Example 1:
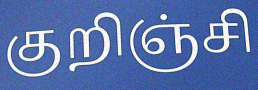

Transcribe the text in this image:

குறிஞ்சி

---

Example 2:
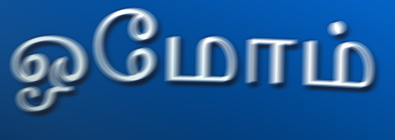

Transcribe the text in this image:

ஓமோம்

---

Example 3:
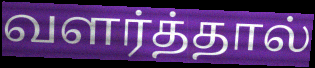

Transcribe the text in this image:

வளர்த்தால்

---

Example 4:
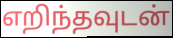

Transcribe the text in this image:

எறிந்தவுடன்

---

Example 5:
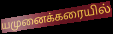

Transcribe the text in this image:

யமுனைக்கரையில்